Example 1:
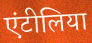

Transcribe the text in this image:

एंटीलिया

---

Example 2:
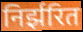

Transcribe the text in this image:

निर्झरित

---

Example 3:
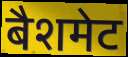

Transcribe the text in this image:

बैशमेट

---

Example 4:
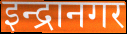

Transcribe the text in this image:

इन्द्रानगर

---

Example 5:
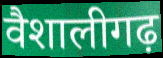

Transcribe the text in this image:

वैशालीगढ़